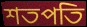
শতপতি